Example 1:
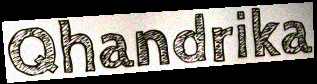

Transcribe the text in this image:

Qhandrika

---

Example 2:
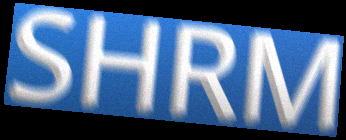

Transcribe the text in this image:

SHRM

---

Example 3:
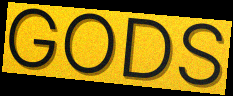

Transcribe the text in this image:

GODS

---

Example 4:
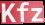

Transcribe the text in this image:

Kfz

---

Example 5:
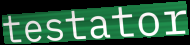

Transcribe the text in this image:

testator